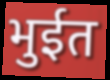
भुईत